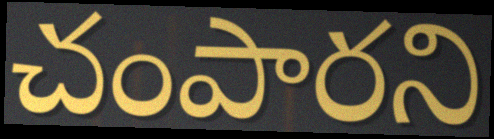
చంపారని